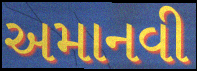
અમાનવી